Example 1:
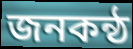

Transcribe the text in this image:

জনকন্ঠ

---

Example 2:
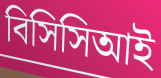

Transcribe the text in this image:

বিসিসিআই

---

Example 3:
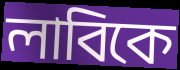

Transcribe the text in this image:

লাবিকে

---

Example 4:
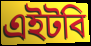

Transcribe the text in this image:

এইটবি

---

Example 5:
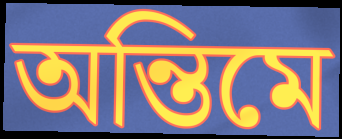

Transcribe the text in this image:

অন্তিমে